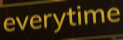
everytime